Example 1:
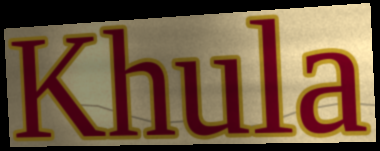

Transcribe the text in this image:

Khula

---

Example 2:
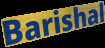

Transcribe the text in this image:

Barishal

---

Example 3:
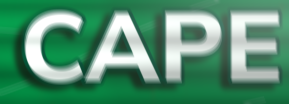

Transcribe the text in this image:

CAPE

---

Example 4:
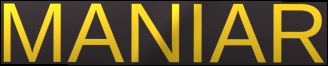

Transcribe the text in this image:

MANIAR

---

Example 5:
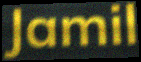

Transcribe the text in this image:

Jamil